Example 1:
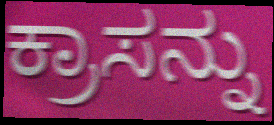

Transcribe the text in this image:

ಕ್ರಾಸನ್ನು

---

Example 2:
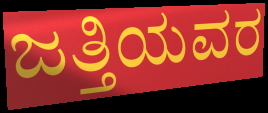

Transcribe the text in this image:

ಜತ್ತಿಯವರ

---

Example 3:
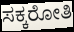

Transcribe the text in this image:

ಸಕ್ಕರೋತಿ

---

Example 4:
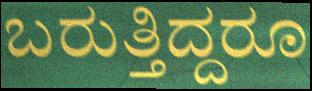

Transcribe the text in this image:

ಬರುತ್ತಿದ್ದರೂ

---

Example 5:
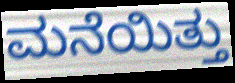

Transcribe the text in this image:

ಮನೆಯಿತ್ತು